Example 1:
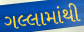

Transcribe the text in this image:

ગલ્લામાંથી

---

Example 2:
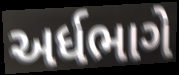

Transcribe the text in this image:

અર્ધભાગે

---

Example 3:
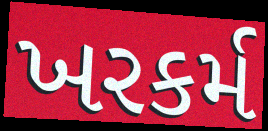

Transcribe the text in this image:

ખરકર્મ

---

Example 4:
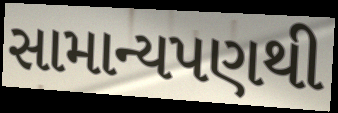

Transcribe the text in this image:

સામાન્યપણથી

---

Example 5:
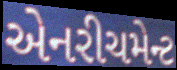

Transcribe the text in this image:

એનરીચમેન્ટ